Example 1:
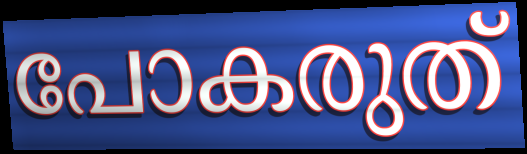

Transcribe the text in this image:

പോകരുത്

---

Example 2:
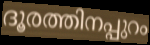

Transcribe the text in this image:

ദൂരത്തിനപ്പുറം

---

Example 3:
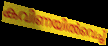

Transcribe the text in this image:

കവിണയിൽവെച്ച്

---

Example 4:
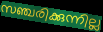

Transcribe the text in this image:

സഞ്ചരിക്കുന്നില്ല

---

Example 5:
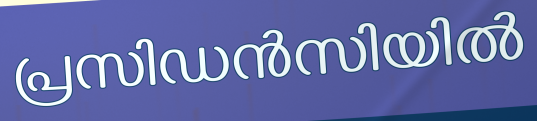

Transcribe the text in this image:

പ്രസിഡൻസിയിൽ